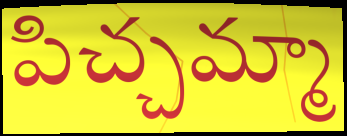
పిచ్చమ్మా